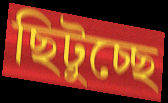
ছিটুচ্ছে